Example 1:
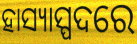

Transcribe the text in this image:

ହାସ୍ୟାସ୍ପଦରେ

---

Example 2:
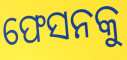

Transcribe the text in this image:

ଫେସନକୁ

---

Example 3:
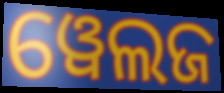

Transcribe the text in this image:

ୱେଲଜ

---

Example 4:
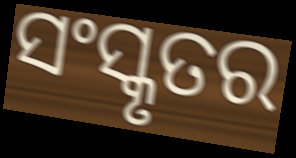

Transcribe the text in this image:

ସଂସ୍କୃତର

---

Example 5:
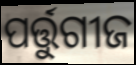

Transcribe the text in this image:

ପର୍ତ୍ତୁଗୀଜ